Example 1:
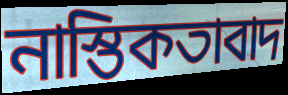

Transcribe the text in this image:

নাস্তিকতাবাদ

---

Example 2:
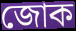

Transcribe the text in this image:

জোক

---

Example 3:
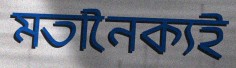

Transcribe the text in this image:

মতানৈক্যই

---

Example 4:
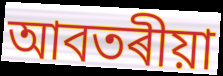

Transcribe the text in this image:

আবতৰীয়া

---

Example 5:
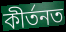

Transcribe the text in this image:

কীৰ্তনত